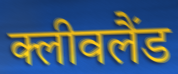
क्‍लीवलैंड